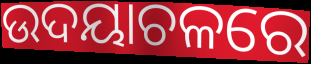
ଉଦୟାଚଳରେ